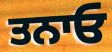
ਤਨਾਓ